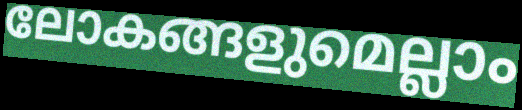
ലോകങ്ങളുമെല്ലാം